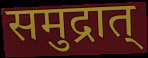
समुद्रात्